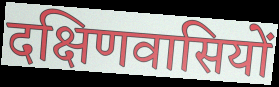
दक्षिणवासियों